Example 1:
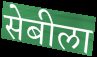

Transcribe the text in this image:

सेबीला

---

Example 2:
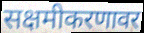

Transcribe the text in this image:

सक्षमीकरणावर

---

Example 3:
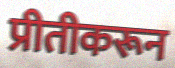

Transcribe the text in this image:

प्रीतीकरून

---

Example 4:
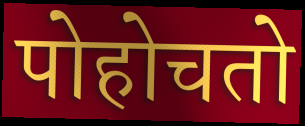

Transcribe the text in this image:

पोहोचतो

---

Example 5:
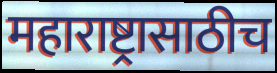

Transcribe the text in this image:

महाराष्ट्रासाठीच